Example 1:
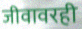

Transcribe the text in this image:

जीवावरही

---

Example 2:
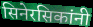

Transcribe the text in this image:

सिनेरसिकांनी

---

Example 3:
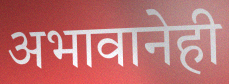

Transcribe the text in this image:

अभावानेही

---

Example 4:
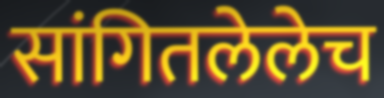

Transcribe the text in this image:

सांगितलेलेच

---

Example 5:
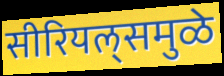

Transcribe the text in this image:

सीरियल्समुळे